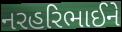
નરહરિભાઈને